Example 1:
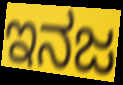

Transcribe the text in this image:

ಇನಜ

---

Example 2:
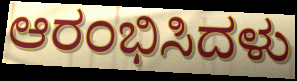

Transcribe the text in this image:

ಆರಂಭಿಸಿದಳು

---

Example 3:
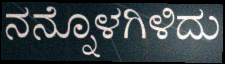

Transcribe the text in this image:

ನನ್ನೊಳಗಿಳಿದು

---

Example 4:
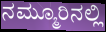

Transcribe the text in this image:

ನಮ್ಮೂರಿನಲ್ಲಿ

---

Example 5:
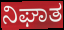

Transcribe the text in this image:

ನಿಘಾತ